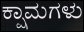
ಕ್ಷಾಮಗಳು